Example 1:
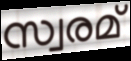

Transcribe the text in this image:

സ്വരമ്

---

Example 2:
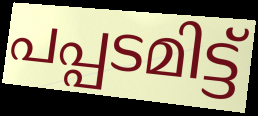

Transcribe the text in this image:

പപ്പടമിട്ട്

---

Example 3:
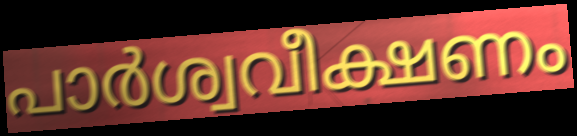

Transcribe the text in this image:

പാർശ്വവീക്ഷണം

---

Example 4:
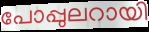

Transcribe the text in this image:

പോപ്പുലറായി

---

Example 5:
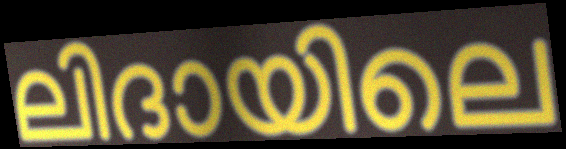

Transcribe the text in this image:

ലിദായിലെ